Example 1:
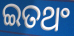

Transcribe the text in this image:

ଇତଥଂ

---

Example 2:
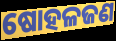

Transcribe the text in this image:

ଷୋହଳଜଣ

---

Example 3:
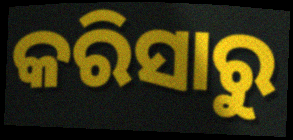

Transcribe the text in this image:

କରିସାରୁ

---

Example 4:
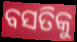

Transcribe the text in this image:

ବସତିକୁ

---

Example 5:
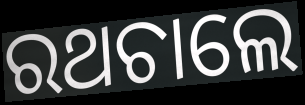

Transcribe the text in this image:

ରଥଚାଲେ